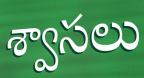
శ్వాసలు